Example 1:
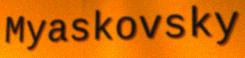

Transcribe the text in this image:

Myaskovsky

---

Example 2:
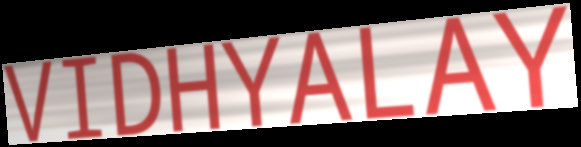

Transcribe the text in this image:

VIDHYALAY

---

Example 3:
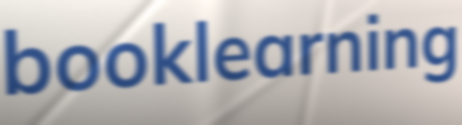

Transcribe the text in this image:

booklearning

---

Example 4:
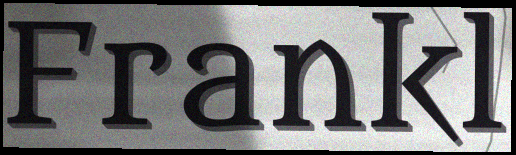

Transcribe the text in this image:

Frankl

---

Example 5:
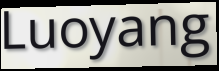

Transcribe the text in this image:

Luoyang